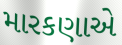
મારકણાએ